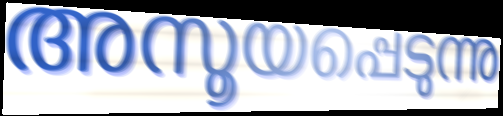
അസൂയപ്പെടുന്നു